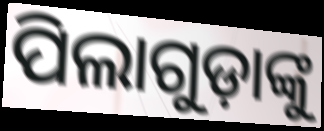
ପିଲାଗୁଡ଼ାଙ୍କୁ